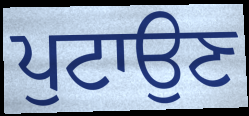
ਪੁਟਾਉਣ